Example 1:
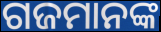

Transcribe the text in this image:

ଗଜମାନଙ୍କ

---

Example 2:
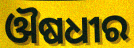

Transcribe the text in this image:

ଔଷଧୀର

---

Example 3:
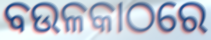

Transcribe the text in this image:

ବଉଳକାଠରେ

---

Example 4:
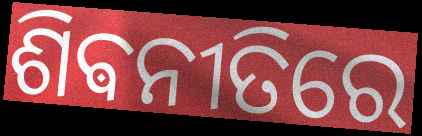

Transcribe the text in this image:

ଶିଵନୀତିରେ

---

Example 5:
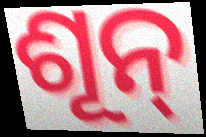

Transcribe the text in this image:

ଶୂନ୍